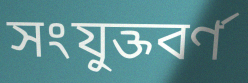
সংযুক্তবর্ণ